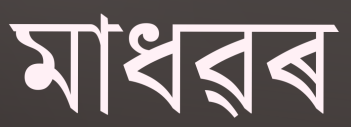
মাধৱৰ